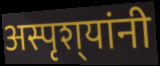
अस्पृश्यांनी